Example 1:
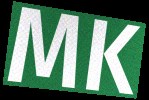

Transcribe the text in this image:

MK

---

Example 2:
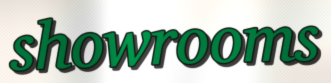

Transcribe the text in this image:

showrooms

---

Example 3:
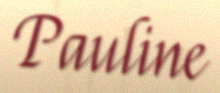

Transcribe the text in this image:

Pauline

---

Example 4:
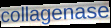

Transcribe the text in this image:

collagenase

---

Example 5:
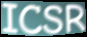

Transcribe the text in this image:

ICSR